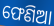
ଫେଣିଆ